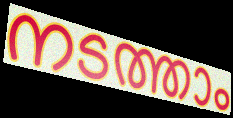
നടത്താം